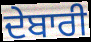
ਦੇਬਾਰੀ